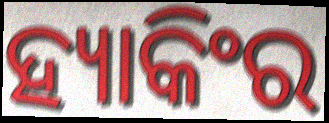
ହ୍ୟାକିଂର